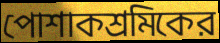
পোশাকশ্রমিকের